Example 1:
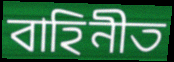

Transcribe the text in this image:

বাহিনীত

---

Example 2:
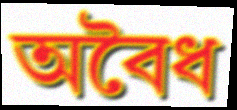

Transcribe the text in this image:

অবৈধ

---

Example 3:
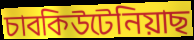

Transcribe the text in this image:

চাবকিউটেনিয়াছ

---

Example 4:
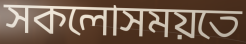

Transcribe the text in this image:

সকলোসময়তে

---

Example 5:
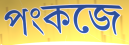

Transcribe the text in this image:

পংকজে